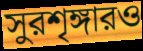
সুরশৃঙ্গারও